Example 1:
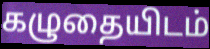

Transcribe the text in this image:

கழுதையிடம்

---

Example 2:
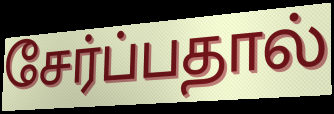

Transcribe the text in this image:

சேர்ப்பதால்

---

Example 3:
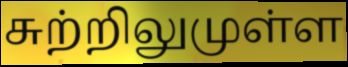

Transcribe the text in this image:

சுற்றிலுமுள்ள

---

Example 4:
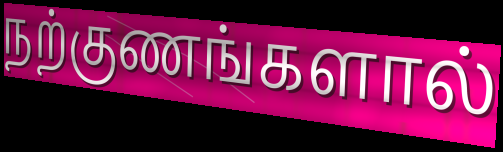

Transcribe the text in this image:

நற்குணங்களால்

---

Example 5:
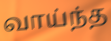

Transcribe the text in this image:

வாய்ந்த